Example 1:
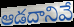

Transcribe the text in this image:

ఆడదానివే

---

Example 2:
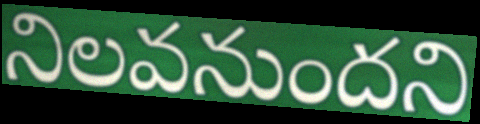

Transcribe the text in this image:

నిలవనుందని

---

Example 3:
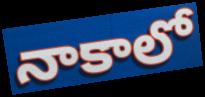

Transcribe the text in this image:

నాకాలో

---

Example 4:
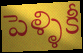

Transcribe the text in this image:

పెళ్ళికీ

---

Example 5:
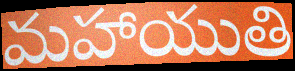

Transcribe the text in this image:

మహాయుతి